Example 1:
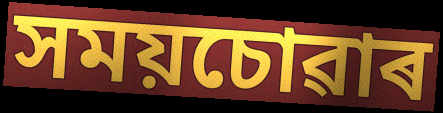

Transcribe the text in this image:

সময়চোৱাৰ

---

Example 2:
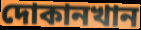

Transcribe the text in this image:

দোকানখান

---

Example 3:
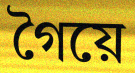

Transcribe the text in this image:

গৈয়ে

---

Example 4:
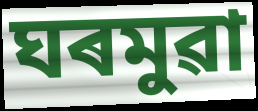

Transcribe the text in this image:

ঘৰমুৱা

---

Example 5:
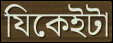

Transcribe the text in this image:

যিকেইটা